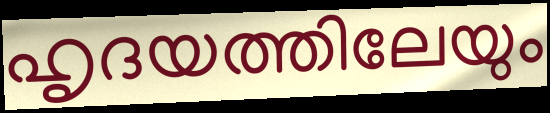
ഹൃദയത്തിലേയും